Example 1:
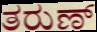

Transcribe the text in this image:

ತರುಣ್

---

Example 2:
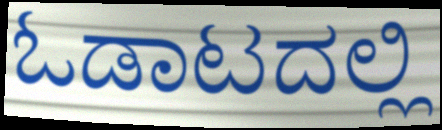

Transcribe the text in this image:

ಓಡಾಟದಲ್ಲಿ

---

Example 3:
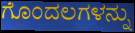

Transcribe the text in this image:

ಗೊಂದಲಗಳನ್ನು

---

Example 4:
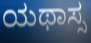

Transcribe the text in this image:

ಯಥಾಸ್ಸ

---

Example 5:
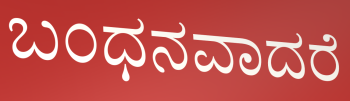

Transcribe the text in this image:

ಬಂಧನವಾದರೆ